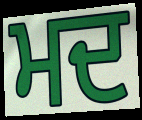
ਮਦ